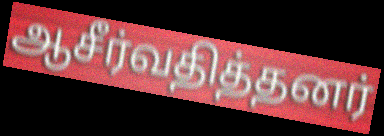
ஆசீர்வதித்தனர்